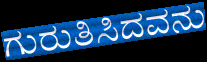
ಗುರುತಿಸಿದವನು